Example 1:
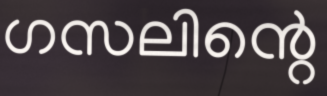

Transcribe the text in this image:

ഗസലിന്റെ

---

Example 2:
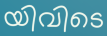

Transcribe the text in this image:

യിവിടെ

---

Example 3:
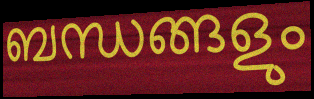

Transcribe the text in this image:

ബന്ധങ്ങളും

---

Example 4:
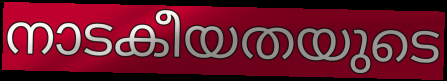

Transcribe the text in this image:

നാടകീയതയുടെ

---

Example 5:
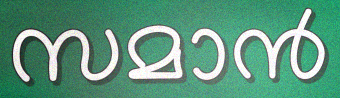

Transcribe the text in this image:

സമാൻ